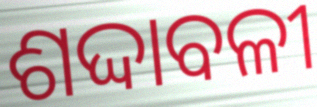
ଶଦ୍ଦାବଳୀ